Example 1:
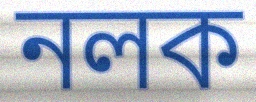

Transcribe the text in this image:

নলক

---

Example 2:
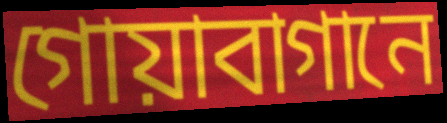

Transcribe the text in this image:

গোয়াবাগানে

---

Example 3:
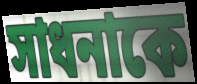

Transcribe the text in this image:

সাধনাকে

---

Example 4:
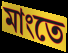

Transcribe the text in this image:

মাংতে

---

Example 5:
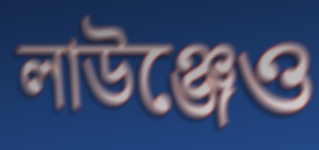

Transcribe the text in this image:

লাউঞ্জেও